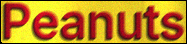
Peanuts